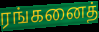
ரங்கனைத்